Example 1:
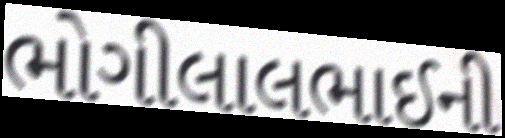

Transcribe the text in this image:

ભોગીલાલભાઈની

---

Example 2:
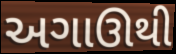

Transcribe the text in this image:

અગાઊથી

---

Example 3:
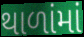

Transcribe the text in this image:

થાળાંમાં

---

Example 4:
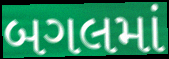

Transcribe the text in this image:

બગલમાં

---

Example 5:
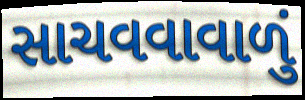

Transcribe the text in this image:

સાચવવાવાળું